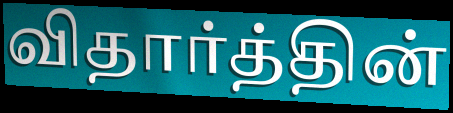
விதார்த்தின்